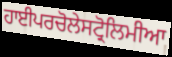
ਹਾਈਪਰਚੋਲੇਸਟ੍ਰੋਲਿਮੀਆ